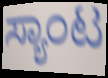
ಸ್ಯಾಂಟ